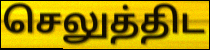
செலுத்திட